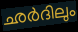
ഛർദിലും